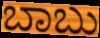
ಬಾಬು